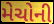
મેચોની